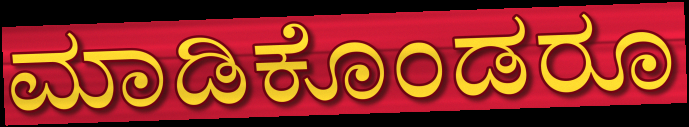
ಮಾಡಿಕೊಂಡರೂ